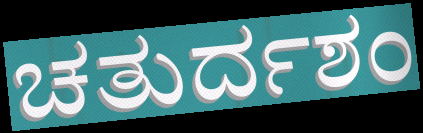
ಚತುರ್ದಶಂ